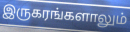
இருகரங்களாலும்